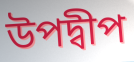
উপদ্বীপ